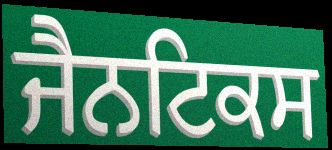
ਜੈਨਟਿਕਸ